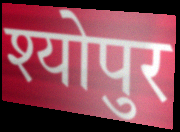
श्‍योपुर